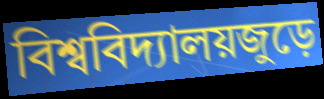
বিশ্ববিদ্যালয়জুড়ে